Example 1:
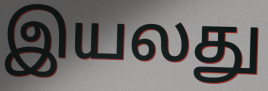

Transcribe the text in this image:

இயலது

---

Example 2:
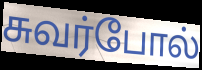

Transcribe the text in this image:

சுவர்போல்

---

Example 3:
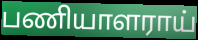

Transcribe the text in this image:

பணியாளராய்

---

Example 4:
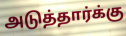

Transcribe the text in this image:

அடுத்தார்க்கு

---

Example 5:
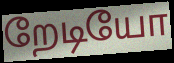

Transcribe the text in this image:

றேடியோ